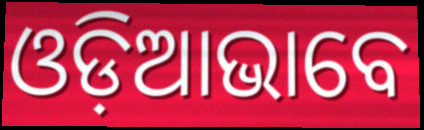
ଓଡ଼ିଆଭାବେ